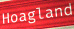
Hoagland